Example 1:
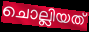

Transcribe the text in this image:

ചൊല്ലിയത്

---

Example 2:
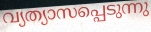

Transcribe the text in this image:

വ്യത്യാസപ്പെടുന്നു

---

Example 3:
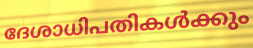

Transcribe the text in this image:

ദേശാധിപതികൾക്കും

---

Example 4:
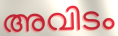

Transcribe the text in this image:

അവിടം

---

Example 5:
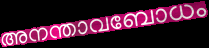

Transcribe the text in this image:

അനന്താവബോധം